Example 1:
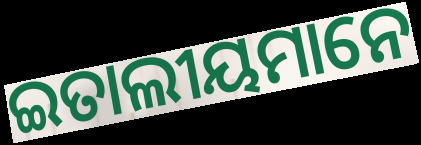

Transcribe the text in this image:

ଇତାଲୀୟମାନେ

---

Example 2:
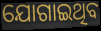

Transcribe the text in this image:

ଯୋଗାଇଥିବ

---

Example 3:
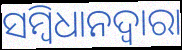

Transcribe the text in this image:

ସମ୍ବିଧାନଦ୍ବାରା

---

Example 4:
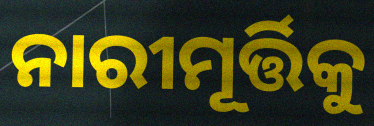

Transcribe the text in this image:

ନାରୀମୂର୍ତ୍ତିକୁ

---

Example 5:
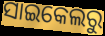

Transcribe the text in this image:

ସାଇକେଲରୁ